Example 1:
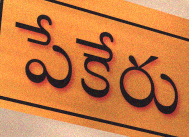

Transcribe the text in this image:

పేకేరు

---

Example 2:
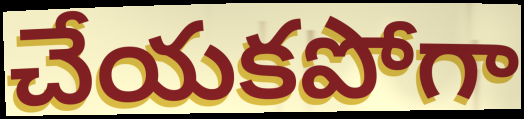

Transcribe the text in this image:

చేయకపోగా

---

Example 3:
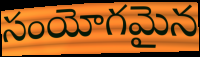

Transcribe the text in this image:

సంయోగమైన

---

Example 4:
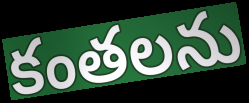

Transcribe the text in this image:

కంతలను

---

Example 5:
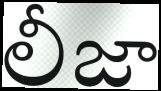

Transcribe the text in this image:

లీజా